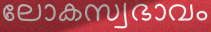
ലോകസ്വഭാവം